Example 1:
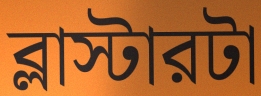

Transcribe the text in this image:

ব্লাস্টারটা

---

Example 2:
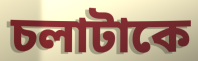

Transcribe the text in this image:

চলাটাকে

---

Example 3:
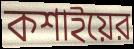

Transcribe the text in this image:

কশাইয়ের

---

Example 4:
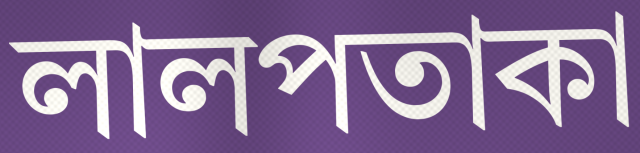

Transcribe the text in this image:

লালপতাকা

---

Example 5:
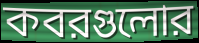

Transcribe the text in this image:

কবরগুলোর